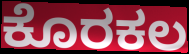
ಕೊರಕಲ